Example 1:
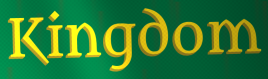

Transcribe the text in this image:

Kingdom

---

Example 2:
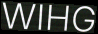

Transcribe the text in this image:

WIHG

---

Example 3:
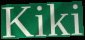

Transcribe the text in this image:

Kiki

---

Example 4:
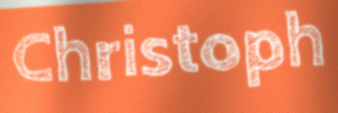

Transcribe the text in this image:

Christoph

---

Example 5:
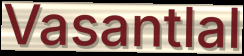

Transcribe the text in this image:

Vasantlal